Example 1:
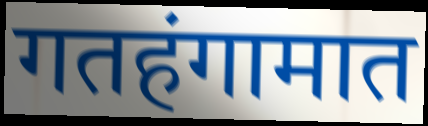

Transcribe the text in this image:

गतहंगामात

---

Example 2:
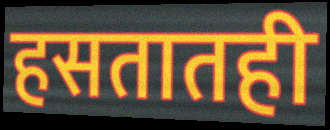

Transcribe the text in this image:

हसतातही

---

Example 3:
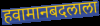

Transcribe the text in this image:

हवामानबदलाला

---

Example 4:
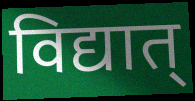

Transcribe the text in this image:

विद्यात्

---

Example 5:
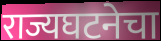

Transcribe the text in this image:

राज्यघटनेचा